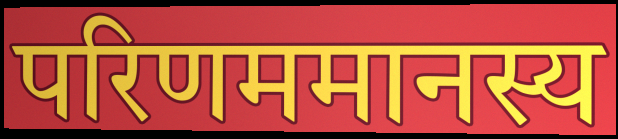
परिणममानस्य